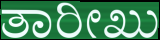
ತಾರೀಖು